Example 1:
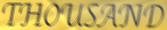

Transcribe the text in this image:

THOUSAND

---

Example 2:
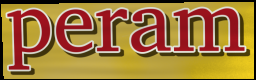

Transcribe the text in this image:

peram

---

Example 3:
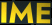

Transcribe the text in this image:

IME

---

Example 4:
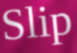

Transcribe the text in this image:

Slip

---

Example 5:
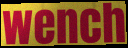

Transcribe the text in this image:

wench